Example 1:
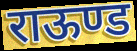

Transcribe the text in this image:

राऊण्ड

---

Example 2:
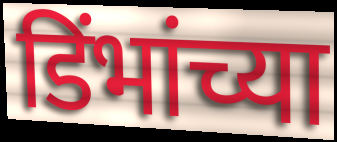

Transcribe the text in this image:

डिंभांच्या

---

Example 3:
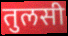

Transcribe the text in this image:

तुलसी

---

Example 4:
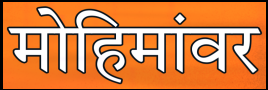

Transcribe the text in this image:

मोहिमांवर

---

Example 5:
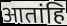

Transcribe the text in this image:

आतांहि